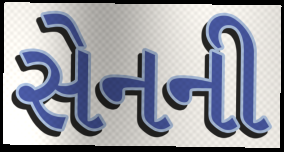
સેનની